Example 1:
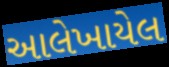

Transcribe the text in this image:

આલેખાયેલ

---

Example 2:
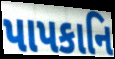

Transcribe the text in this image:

પાપકાનિ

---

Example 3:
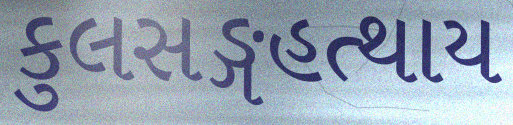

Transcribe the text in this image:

કુલસઙ્ગહત્થાય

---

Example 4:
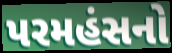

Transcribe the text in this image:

પરમહંસનો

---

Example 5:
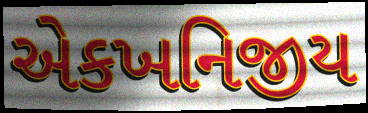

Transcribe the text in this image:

એકખનિજીય